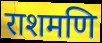
राशमणि